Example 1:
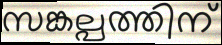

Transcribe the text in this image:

സങ്കല്പത്തിന്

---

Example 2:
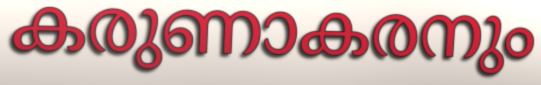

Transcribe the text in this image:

കരുണാകരനും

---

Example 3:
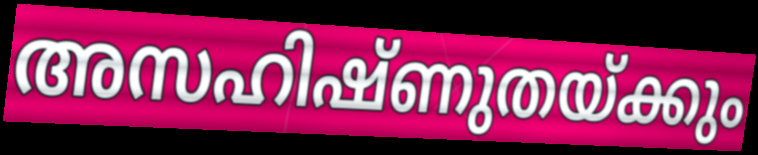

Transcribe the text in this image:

അസഹിഷ്ണുതയ്ക്കും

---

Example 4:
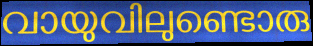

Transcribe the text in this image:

വായുവിലുണ്ടൊരു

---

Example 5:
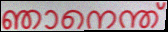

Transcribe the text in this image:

ഞാനെന്ത്